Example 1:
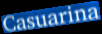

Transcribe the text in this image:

Casuarina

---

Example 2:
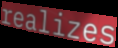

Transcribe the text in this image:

realizes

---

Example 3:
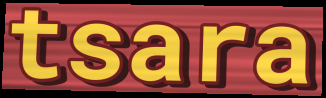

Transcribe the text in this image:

tsara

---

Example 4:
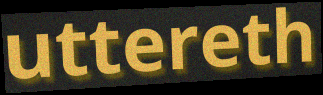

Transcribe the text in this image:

uttereth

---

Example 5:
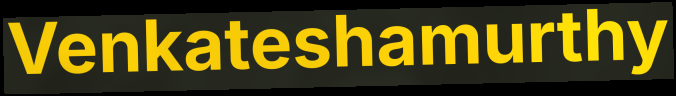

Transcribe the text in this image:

Venkateshamurthy